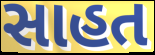
સાહત